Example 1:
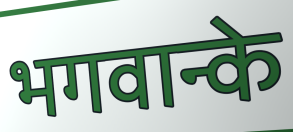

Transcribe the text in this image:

भगवान्के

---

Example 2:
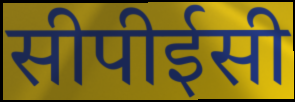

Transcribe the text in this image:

सीपीईसी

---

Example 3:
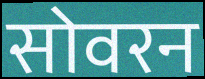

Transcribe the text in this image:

सोवरन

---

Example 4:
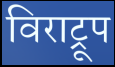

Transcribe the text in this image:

विराट्रूप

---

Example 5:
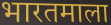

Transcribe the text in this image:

भारतमाला